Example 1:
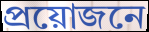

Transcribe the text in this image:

প্ৰয়োজনে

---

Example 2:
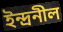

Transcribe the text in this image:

ইন্দ্ৰনীল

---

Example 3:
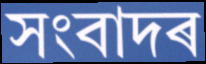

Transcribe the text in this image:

সংবাদৰ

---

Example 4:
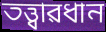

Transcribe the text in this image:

তত্ত্বাৱধান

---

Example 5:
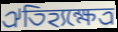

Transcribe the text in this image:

ঐতিহ্যক্ষেত্ৰ